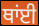
ਥਾਂਈ